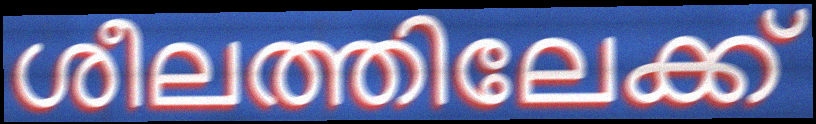
ശീലത്തിലേക്ക്